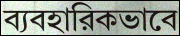
ব্যবহারিকভাবে